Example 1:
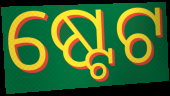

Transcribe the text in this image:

ଷ୍ଟେଟ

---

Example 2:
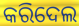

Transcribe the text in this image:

କରିଦେଲ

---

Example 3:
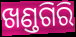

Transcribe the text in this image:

ଖଣ୍ଡଗିରି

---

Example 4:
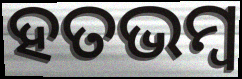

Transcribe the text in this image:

ହତଭମ୍ୱ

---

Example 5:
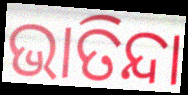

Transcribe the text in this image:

ଭାତିନ୍ଦା